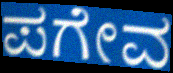
ಪಗೇವ